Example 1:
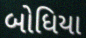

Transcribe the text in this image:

બોધિયા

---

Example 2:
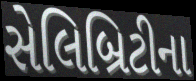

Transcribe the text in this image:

સેલિબ્રિટીના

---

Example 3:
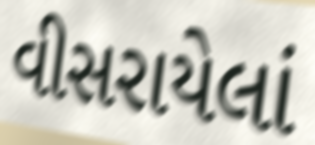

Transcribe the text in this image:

વીસરાયેલાં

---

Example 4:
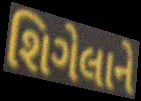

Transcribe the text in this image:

શિગેલાને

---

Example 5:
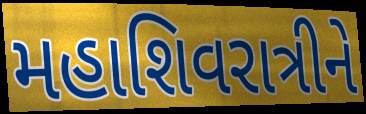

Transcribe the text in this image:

મહાશિવરાત્રીને